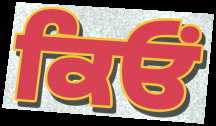
ਕਿਓਂ